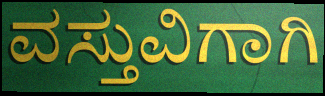
ವಸ್ತುವಿಗಾಗಿ